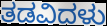
ತಡವಿದಳು